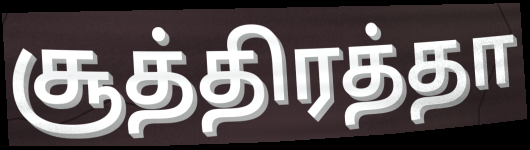
சூத்திரத்தா